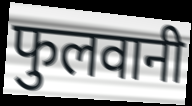
फुलवानी